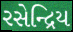
રસેન્દ્રિય